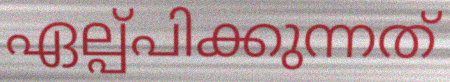
ഏല്പ്പിക്കുന്നത്